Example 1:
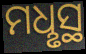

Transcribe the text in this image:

ମଧୢସ୍ଥ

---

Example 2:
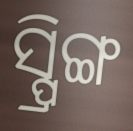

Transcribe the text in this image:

ସ୍ପ୍ରିଙ୍ଗ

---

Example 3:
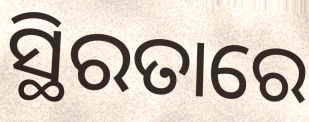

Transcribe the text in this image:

ସ୍ଥିରତାରେ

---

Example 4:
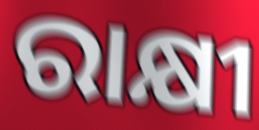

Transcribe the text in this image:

ରାକ୍ଷୀ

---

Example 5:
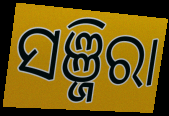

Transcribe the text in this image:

ସଞ୍ଜିରା